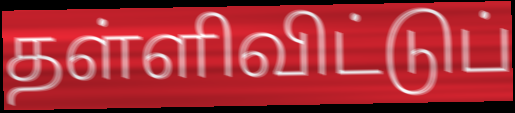
தள்ளிவிட்டுப்